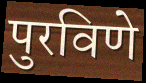
पुरविणे